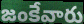
జంకేవారు